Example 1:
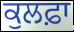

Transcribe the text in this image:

ਕੁਲਫ਼ਾ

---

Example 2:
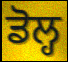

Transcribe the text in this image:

ਡੋਲ੍ਹ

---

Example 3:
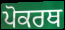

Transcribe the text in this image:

ਪੋਕਰਥ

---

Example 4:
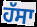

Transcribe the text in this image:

ਹੱਸਾ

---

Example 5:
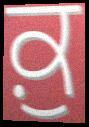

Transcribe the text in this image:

ਕ਼ੁ